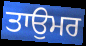
ਤਾਉਮਰ